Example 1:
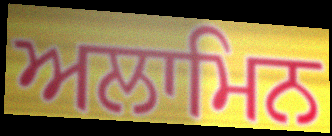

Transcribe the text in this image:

ਅਲਾਮਿਨ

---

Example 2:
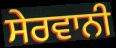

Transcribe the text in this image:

ਸੇਰਵਾਨੀ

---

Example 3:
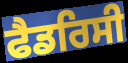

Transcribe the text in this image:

ਫੈਡਰਿਸੀ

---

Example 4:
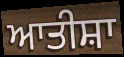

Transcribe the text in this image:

ਆਤੀਸ਼ਾ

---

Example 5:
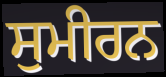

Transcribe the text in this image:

ਸੁਮੀਰਨ